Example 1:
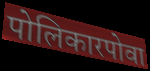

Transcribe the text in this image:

पोलिकारपोवा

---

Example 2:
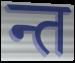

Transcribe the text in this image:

न्त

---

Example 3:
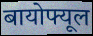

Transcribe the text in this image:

बायोफ्यूल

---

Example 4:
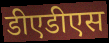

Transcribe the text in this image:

डीएडीएस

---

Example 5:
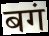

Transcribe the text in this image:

बगं